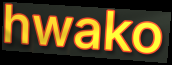
hwako